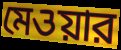
মেওয়ার